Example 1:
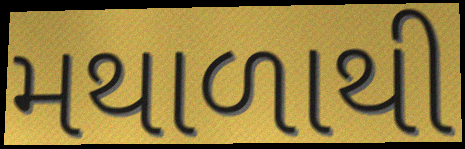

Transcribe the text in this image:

મથાળાથી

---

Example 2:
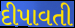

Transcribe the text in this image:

દીપાવતી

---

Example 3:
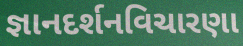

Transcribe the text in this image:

જ્ઞાનદર્શનવિચારણા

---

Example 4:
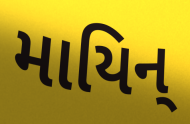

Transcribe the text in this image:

માયિન્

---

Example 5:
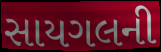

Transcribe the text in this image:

સાયગલની